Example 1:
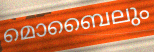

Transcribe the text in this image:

മൊബൈലും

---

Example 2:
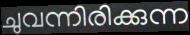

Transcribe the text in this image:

ചുവന്നിരിക്കുന്ന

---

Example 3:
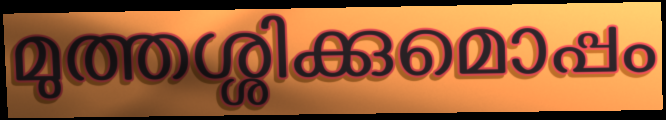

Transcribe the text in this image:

മുത്തശ്ശിക്കുമൊപ്പം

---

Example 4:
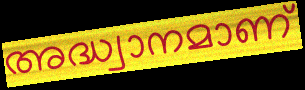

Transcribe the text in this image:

അദ്ധ്വാനമാണ്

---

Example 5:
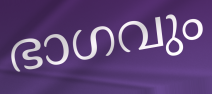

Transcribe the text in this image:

ഭാഗവും